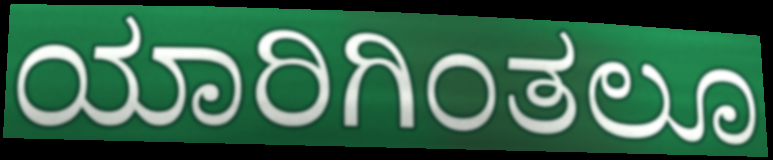
ಯಾರಿಗಿಂತಲೂ